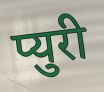
प्युरी